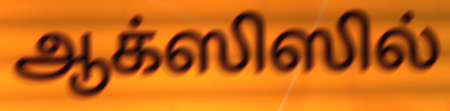
ஆக்ஸிஸில்